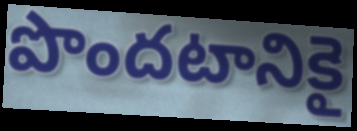
పొందటానికై